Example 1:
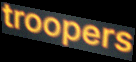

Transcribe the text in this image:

troopers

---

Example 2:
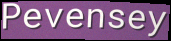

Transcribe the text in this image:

Pevensey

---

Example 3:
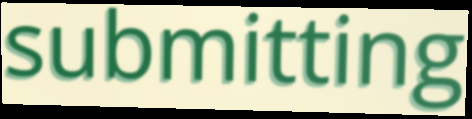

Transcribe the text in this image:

submitting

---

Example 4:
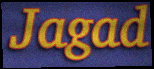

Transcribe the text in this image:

Jagad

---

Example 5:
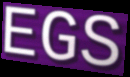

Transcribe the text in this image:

EGS